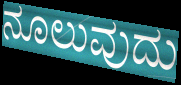
ನೂಲುವುದು